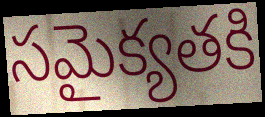
సమైక్యతకి